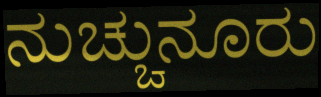
ನುಚ್ಚುನೂರು